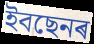
ইবছেনৰ